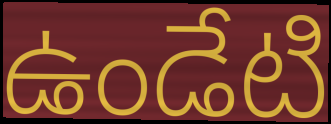
ఉండేటి